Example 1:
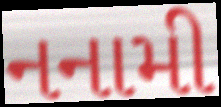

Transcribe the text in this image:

નનામી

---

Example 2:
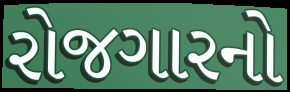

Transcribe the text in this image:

રોજગારનો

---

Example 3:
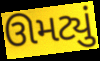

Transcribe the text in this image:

ઊમટ્યું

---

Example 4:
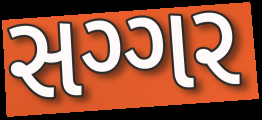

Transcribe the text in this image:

સગ્ગર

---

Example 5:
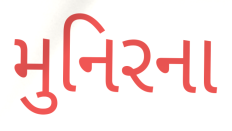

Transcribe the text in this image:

મુનિરના